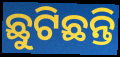
ଛୁଟିଛନ୍ତି